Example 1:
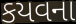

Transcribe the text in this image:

કયવના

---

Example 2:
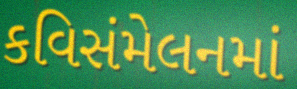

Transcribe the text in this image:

કવિસંમેલનમાં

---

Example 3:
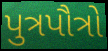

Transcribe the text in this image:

પુત્રપૌત્રો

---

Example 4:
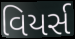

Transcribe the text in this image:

વિયર્સ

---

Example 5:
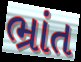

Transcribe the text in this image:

ભ્રાંત